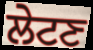
ਲੇਟਣ